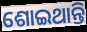
ଶୋଇଥାନ୍ତି